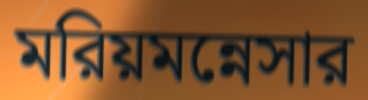
মরিয়মন্নেসার